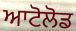
ਆਟੋਲੋਡ